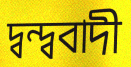
দ্বন্দ্ববাদী